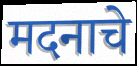
मदनाचे